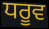
ਧਰੂਵ